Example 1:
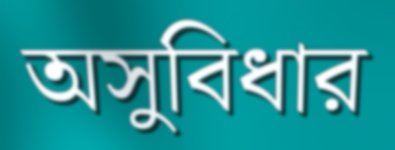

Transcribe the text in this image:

অসুবিধার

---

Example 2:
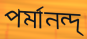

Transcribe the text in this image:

পর্মানন্দ্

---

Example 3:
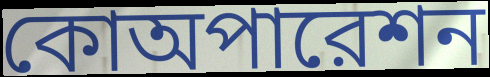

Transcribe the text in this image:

কোঅপারেশন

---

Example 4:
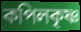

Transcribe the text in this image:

কপিলকৃষ্ণ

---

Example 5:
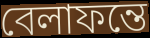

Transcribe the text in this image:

বেলাফন্তে